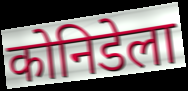
कोनिडेला